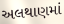
અલથાણમાં